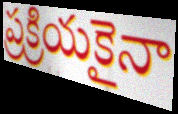
ప్రక్రియకైనా